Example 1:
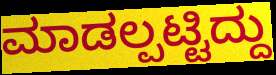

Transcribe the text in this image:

ಮಾಡಲ್ಪಟ್ಟಿದ್ದು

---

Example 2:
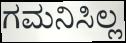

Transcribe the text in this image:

ಗಮನಿಸಿಲ್ಲ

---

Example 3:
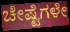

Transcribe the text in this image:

ಚೇಷ್ಟೆಗಳೇ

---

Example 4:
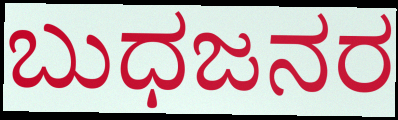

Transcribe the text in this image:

ಬುಧಜನರ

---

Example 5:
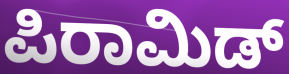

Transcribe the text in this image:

ಪಿರಾಮಿಡ್